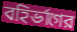
বহির্ভাগের